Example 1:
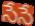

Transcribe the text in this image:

సేసే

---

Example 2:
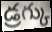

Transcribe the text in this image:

డ్రగ్కు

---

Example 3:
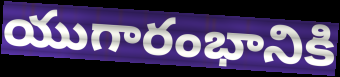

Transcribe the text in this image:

యుగారంభానికి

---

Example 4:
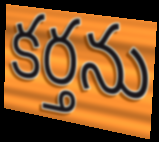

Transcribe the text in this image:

కర్తను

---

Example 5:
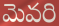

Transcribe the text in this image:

మెవరి